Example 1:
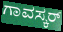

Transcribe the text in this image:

ಗಾವಸ್ಕರ್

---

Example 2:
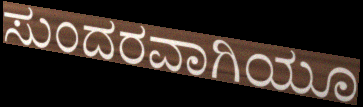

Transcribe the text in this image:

ಸುಂದರವಾಗಿಯೂ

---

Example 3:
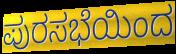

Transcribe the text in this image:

ಪುರಸಭೆಯಿಂದ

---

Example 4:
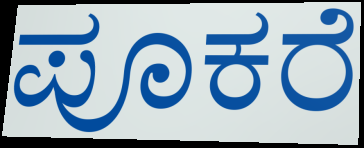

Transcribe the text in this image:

ಪೂಕರೆ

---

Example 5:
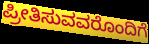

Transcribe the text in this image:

ಪ್ರೀತಿಸುವವರೊಂದಿಗೆ